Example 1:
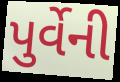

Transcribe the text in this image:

પુર્વેની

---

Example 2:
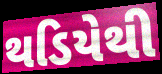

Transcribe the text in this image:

થડિયેથી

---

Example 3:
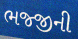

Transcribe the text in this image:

ભજ્જીની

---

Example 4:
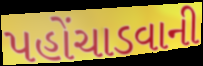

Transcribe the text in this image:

પહોંચાડવાની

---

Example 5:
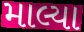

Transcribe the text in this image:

માલ્યા